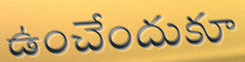
ఉంచేందుకూ